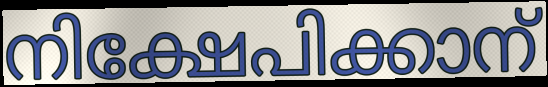
നിക്ഷേപിക്കാന്